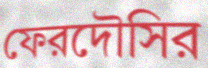
ফেরদৌসির